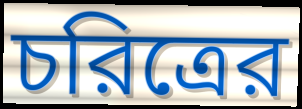
চরিত্রের